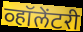
व्हॉलेंटरी